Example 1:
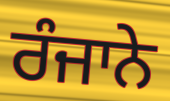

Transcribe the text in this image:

ਰੰਜਾਨੇ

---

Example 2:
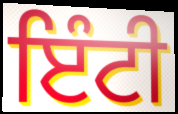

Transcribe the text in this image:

ਇੰਟੀ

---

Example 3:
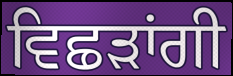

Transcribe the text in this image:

ਵਿਛੜਾਂਗੀ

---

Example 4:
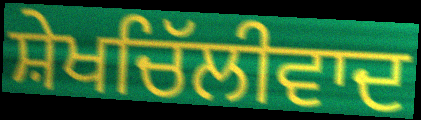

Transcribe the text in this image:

ਸ਼ੇਖਚਿੱਲੀਵਾਦ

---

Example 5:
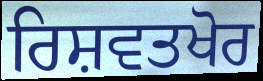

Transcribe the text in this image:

ਰਿਸ਼ਵਤਖੋਰ